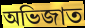
অভিজাত